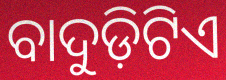
ବାଦୁଡ଼ିଟିଏ